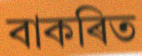
বাকৰিত